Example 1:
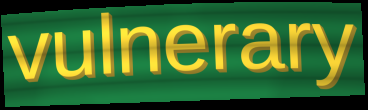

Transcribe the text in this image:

vulnerary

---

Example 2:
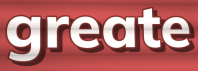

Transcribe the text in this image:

greate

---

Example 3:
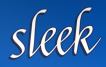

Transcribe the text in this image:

sleek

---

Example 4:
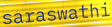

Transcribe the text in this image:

saraswathi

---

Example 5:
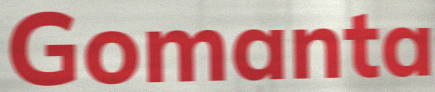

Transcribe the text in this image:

Gomanta